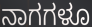
ನಾಗಗಳೂ